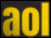
aol